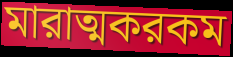
মারাত্মকরকম